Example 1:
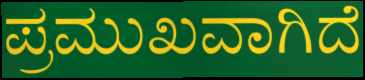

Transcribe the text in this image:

ಪ್ರಮುಖವಾಗಿದೆ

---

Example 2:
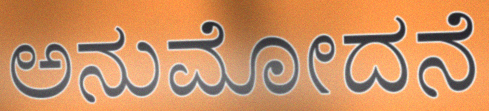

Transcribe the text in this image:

ಅನುಮೋದನೆ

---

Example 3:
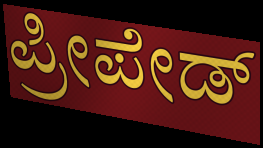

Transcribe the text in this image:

ಪ್ರೀಪೇಡ್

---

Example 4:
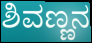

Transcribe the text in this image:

ಶಿವಣ್ಣನ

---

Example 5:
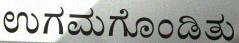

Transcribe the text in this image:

ಉಗಮಗೊಂಡಿತು